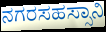
ನಗರಸಹಸ್ಸಾನಿ